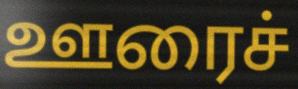
ஊரைச்